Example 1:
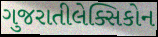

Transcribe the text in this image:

ગુજરાતીલેક્સિકોન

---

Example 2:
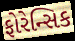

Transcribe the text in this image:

ફોરેન્સિક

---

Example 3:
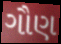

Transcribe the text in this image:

ગૌણ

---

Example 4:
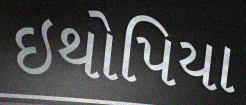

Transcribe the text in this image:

ઇથોપિયા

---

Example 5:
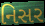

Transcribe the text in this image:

નિસર